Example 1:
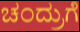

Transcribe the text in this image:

ಚಂದ್ರುಗೆ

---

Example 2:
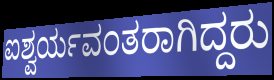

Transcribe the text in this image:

ಐಶ್ವರ್ಯವಂತರಾಗಿದ್ದರು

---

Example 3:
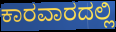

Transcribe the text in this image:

ಕಾರವಾರದಲ್ಲಿ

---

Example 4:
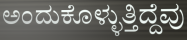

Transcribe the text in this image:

ಅಂದುಕೊಳ್ಳುತ್ತಿದ್ದೆವು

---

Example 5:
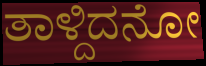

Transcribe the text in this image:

ತಾಳ್ದಿದನೋ